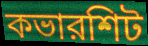
কভারশিট